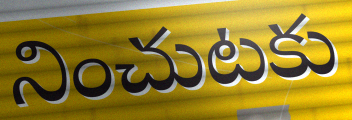
నించుటకు